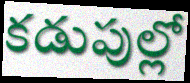
కడుపుల్లో